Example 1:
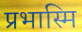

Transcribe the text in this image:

प्रभास्मि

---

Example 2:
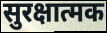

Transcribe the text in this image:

सुरक्षात्मक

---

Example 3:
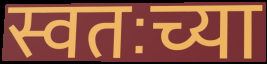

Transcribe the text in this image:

स्वतःच्या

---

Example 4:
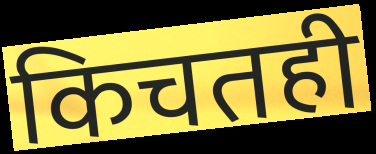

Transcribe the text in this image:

किचतही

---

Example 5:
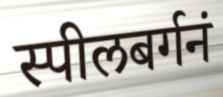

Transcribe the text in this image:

स्पीलबर्गनं